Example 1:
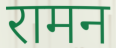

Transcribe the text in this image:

रामन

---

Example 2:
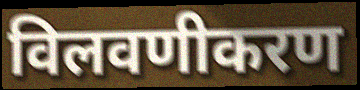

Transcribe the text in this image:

विलवणीकरण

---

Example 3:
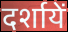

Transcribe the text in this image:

दर्शायें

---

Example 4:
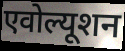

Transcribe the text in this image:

एवोल्यूशन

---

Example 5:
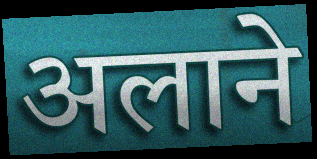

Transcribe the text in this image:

अलाने